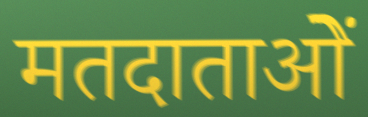
मतदाताओें